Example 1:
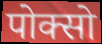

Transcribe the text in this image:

पोक्सो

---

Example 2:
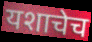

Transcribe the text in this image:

यशाचेच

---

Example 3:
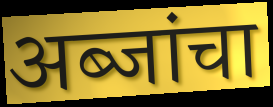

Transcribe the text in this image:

अब्जांचा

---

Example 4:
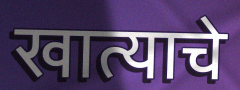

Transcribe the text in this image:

खात्याचे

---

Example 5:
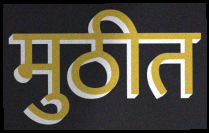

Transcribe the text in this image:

मुठीत